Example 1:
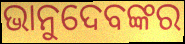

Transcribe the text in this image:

ଭାନୁଦେବଙ୍କର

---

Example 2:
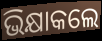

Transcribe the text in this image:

ଭିକ୍ଷାକଲେ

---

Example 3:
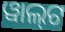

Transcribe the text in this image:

ୱାଲ୍‌ଟ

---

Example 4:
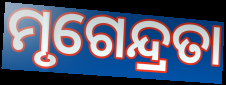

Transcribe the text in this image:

ମୃଗେନ୍ଦ୍ରତା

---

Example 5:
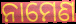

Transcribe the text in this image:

ନାମେଣ